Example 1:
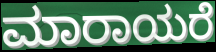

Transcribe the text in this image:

ಮಾರಾಯರೆ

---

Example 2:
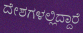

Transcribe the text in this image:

ದೇಶಗಳಲ್ಲಿದ್ದಾರೆ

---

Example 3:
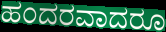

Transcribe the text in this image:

ಹಂದರವಾದರೂ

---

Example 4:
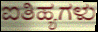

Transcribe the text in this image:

ಐತಿಹ್ಯಗಳು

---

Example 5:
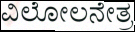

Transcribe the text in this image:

ವಿಲೋಲನೇತ್ರ